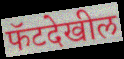
फॅटदेखील